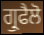
ਗ੍ਰੁਫੈਲੋ